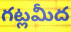
గట్లమీద